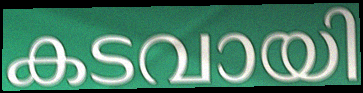
കടവായി